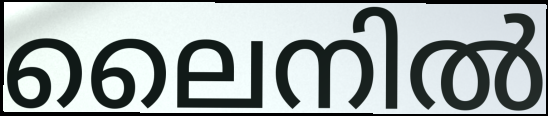
ലൈനിൽ